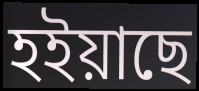
হইয়াছে